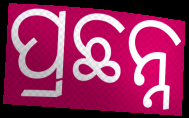
ପ୍ରଛନ୍ନ